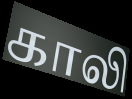
காலி